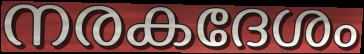
നരകദേശം